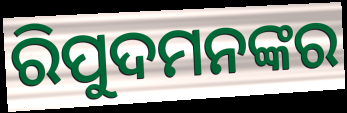
ରିପୁଦମନଙ୍କର